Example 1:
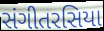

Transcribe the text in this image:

સંગીતરસિયા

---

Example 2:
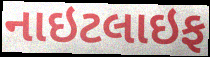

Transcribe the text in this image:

નાઇટલાઇફ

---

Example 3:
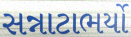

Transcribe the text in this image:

સન્નાટાભર્યો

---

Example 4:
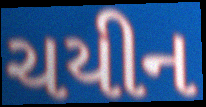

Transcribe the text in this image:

ચયીન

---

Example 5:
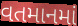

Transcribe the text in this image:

વતમાનમાં